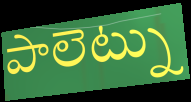
పాలెట్ను